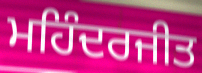
ਮਹਿੰਦਰਜੀਤ